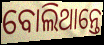
ବୋଲିଥାନ୍ତେ